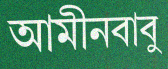
আমীনবাবু